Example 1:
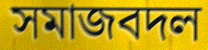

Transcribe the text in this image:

সমাজবদল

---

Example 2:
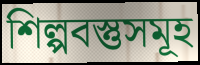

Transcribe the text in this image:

শিল্পবস্তুসমূহ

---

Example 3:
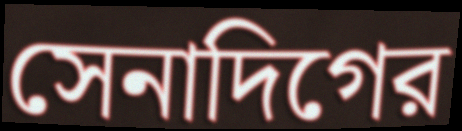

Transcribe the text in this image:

সেনাদিগের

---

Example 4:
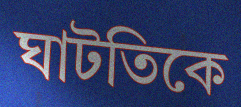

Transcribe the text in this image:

ঘাটতিকে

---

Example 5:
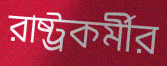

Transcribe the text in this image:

রাষ্ট্রকর্মীর